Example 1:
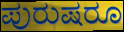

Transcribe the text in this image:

ಪುರುಷರೂ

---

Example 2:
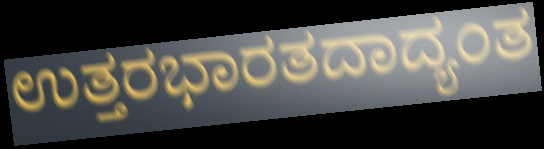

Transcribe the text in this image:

ಉತ್ತರಭಾರತದಾದ್ಯಂತ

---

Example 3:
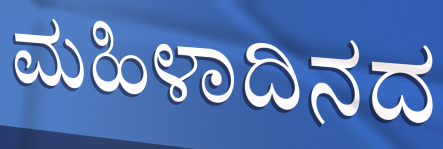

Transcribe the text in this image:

ಮಹಿಳಾದಿನದ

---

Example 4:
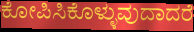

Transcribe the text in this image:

ಕೋಪಿಸಿಕೊಳ್ಳುವುದಾದರೆ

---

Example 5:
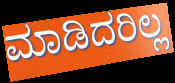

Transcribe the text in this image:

ಮಾಡಿದರಿಲ್ಲ